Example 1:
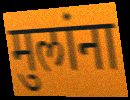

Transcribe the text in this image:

मुलांना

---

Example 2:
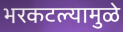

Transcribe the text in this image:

भरकटल्यामुळे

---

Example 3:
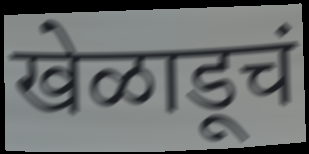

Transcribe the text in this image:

खेळाडूचं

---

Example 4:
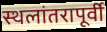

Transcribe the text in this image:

स्थलांतरापूर्वी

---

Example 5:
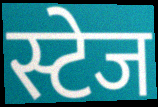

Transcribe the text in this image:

स्टेज